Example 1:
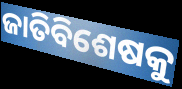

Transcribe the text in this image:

ଜାତିବିଶେଷକୁ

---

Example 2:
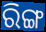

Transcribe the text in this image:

ରିଙ୍ଗ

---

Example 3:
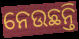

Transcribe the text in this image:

ନେଉଛନ୍ତି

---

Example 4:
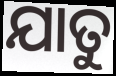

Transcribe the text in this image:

ଯାତୁ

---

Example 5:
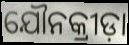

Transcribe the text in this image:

ଯୌନକ୍ରୀଡ଼ା